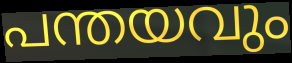
പന്തയവും